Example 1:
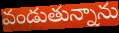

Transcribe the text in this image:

వండుతున్నాను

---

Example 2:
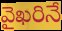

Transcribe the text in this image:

వైఖరినే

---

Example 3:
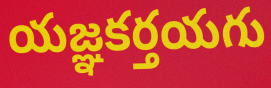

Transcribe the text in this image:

యజ్ఞకర్తయగు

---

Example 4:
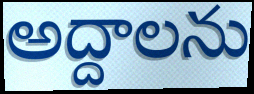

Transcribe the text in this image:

అద్దాలను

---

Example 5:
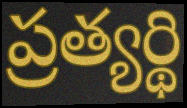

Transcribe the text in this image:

ప్రత్యర్థి